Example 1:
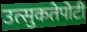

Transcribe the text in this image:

उत्सुकतेपोटी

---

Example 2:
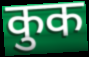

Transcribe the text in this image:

कुक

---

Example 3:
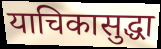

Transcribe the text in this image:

याचिकासुद्धा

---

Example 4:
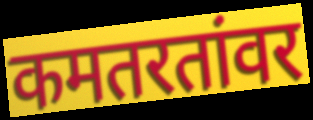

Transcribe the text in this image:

कमतरतांवर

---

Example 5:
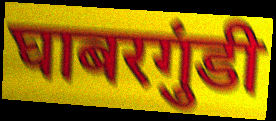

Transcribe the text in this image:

घाबरगुंडी